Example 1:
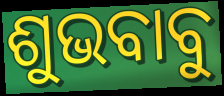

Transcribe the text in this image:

ଶୁଭବାବୁ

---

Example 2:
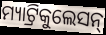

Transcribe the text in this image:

ମ୍ୟାଟ୍ରିକୁଲେସନ୍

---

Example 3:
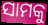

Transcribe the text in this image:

ସାମକୁ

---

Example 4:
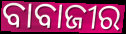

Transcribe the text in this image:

ବାବାଜୀର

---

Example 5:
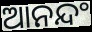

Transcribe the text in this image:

ଆନନ୍ଦଂ